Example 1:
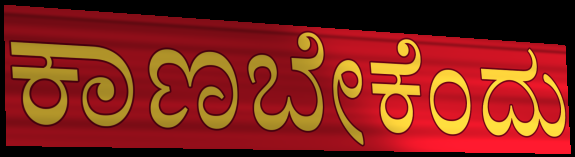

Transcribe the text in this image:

ಕಾಣಬೇಕೆಂದು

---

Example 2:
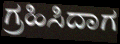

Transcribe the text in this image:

ಗ್ರಹಿಸಿದಾಗ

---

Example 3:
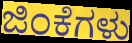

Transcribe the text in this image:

ಜಿಂಕೆಗಳು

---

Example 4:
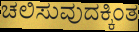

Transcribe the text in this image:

ಚಲಿಸುವುದಕ್ಕಿಂತ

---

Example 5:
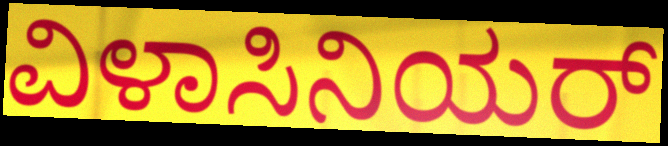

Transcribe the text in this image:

ವಿಳಾಸಿನಿಯರ್